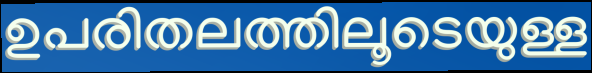
ഉപരിതലത്തിലൂടെയുള്ള